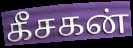
கீசகன்